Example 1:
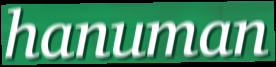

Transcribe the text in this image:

hanuman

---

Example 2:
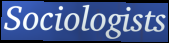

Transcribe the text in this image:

Sociologists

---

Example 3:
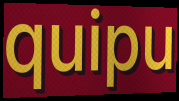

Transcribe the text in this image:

quipu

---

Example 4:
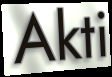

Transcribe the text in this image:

Akti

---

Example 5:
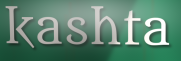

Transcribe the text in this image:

kashta